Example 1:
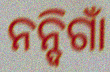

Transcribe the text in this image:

ନନ୍ଦିଗାଁ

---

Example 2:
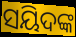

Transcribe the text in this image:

ସୟିଦଙ୍କ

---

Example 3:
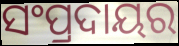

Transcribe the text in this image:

ସଂପ୍ରଦାୟର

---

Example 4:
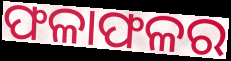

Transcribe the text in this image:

ଫଳାଫଳର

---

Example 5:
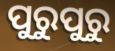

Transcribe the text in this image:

ପୁରୁପୁରୁ